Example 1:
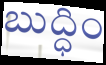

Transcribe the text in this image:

బుద్ధిం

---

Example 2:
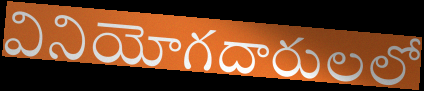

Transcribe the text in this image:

వినియోగదారులలో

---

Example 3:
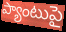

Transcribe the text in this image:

ప్యాంటుపై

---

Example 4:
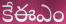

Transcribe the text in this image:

కేఈఎం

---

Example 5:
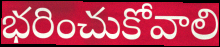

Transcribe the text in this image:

భరించుకోవాలి